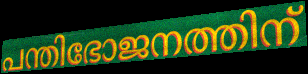
പന്തിഭോജനത്തിന്